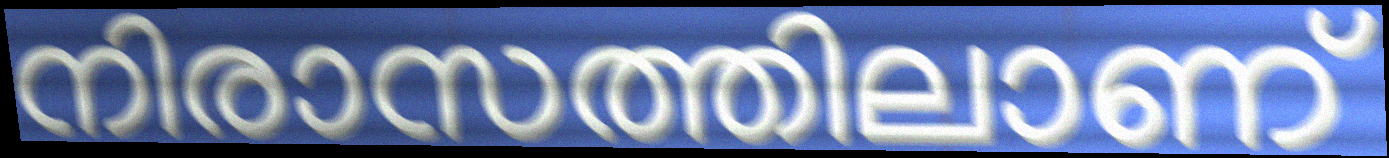
നിരാസത്തിലാണ്